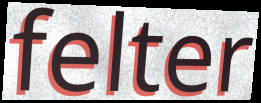
felter